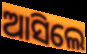
ଆସିଲେ